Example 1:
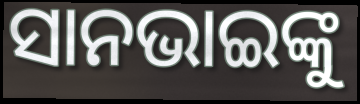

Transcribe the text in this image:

ସାନଭାଇଙ୍କୁ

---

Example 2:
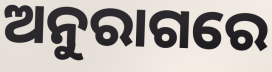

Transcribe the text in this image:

ଅନୁରାଗରେ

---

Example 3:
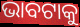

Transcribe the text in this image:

ଭାବଟାକୁ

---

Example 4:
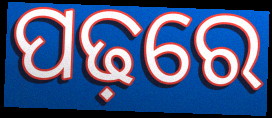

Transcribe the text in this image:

ପଢ଼ରେ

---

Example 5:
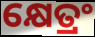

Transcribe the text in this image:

କ୍ଷେତ୍ରଂ